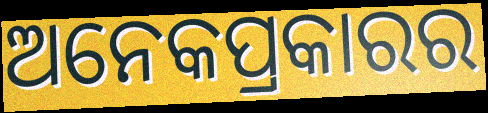
ଅନେକପ୍ରକାରର